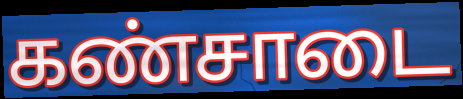
கண்சாடை